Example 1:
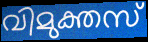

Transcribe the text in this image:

വിമുക്തസ്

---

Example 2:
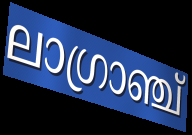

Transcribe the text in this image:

ലാഗ്രാഞ്ച്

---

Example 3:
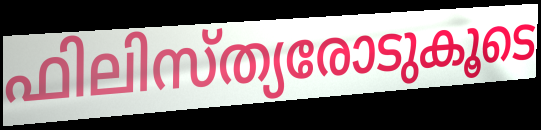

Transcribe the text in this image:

ഫിലിസ്ത്യരോടുകൂടെ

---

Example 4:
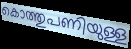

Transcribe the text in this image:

കൊത്തുപണിയുള്ള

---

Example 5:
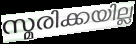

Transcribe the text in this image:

സ്മരിക്കയില്ല